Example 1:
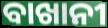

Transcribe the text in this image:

ବାଖାନୀ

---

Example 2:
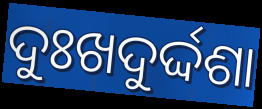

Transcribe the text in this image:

ଦୁଃଖଦୁର୍ଦ୍ଦଶା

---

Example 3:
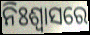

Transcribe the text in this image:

ନିଃଶ୍ଵାସରେ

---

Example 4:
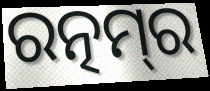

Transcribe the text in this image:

ରତ୍ନମ୍‌ର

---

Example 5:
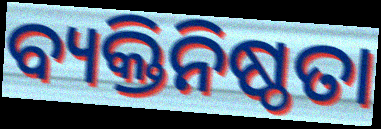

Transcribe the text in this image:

ବ୍ୟକ୍ତିନିଷ୍ଠତା